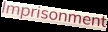
Imprisonment